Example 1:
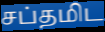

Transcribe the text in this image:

சப்தமிட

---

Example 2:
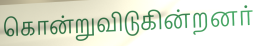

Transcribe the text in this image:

கொன்றுவிடுகின்றனர்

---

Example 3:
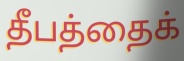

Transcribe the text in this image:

தீபத்தைக்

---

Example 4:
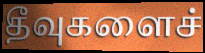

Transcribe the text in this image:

தீவுகளைச்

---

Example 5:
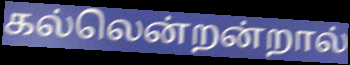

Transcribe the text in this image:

கல்லென்றன்றால்